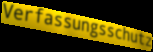
Verfassungsschutz